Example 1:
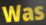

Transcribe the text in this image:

Was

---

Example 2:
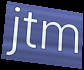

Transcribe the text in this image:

jtm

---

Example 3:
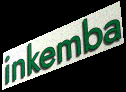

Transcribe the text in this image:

inkemba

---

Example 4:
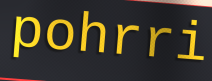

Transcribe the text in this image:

pohrri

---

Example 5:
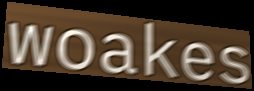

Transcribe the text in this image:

woakes